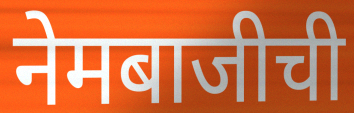
नेमबाजीची